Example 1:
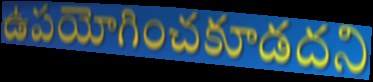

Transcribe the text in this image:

ఉపయోగించకూడదని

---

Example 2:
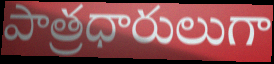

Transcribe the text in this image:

పాత్రధారులుగా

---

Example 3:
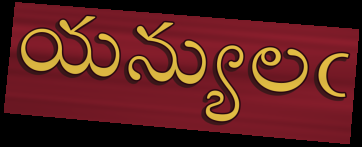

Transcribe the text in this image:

యన్యులఁ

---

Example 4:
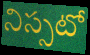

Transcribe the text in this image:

నిస్సటో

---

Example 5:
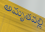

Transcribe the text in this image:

అమృతవల్లి